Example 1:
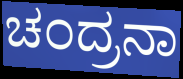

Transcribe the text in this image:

ಚಂದ್ರನಾ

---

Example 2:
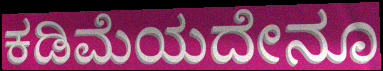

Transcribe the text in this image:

ಕಡಿಮೆಯದೇನೂ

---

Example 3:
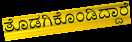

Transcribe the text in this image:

ತೊಡಗಿಕೊಂಡಿದ್ದಾರೆ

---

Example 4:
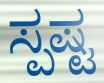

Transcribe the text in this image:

ಸ್ಪಷ್ಟ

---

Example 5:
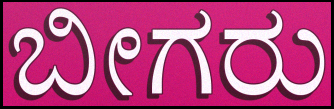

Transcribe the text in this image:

ಬೀಗರು